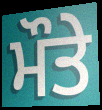
ਮੌਤੇ